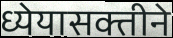
ध्येयासक्तीने